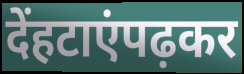
देंहटाएंपढ़कर